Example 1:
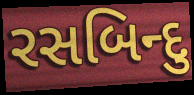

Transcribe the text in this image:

રસબિન્દુ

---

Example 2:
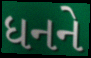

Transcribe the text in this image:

ધનને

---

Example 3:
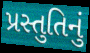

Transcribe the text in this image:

પ્રસ્તુતિનું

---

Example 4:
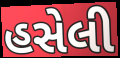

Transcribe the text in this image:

હસેલી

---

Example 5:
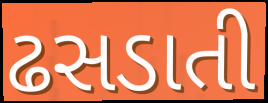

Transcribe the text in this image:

ઢસડાતી